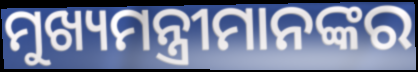
ମୁଖ୍ୟମନ୍ତ୍ରୀମାନଙ୍କର